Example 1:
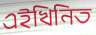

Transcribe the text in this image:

এইখিনিত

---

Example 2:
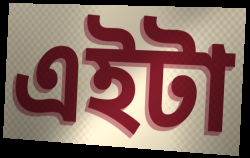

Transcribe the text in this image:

এইটা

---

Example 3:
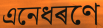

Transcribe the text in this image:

এনেধৰণে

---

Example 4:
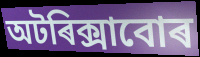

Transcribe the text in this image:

অটৰিক্সাবোৰ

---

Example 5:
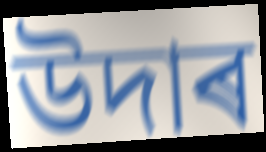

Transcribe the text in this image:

উদাৰ